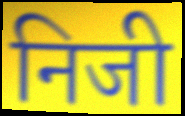
निजी